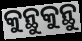
କୁନ୍ଥୁକୁନ୍ଥୁ